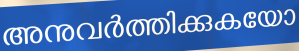
അനുവർത്തിക്കുകയോ